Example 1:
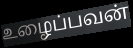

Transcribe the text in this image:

உழைப்பவன்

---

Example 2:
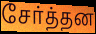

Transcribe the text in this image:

சேர்த்தன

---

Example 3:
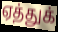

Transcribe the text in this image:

ஏத்துக்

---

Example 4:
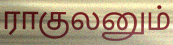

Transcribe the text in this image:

ராகுலனும்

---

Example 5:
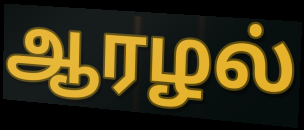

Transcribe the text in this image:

ஆரழல்